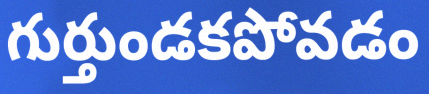
గుర్తుండకపోవడం